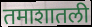
तमाशातली